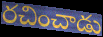
రచించాడు